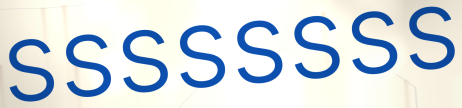
ssssssss